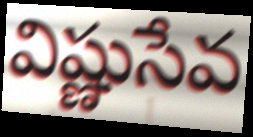
విష్ణుసేవ